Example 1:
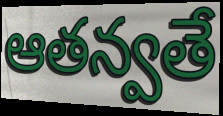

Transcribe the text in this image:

ఆతన్వతే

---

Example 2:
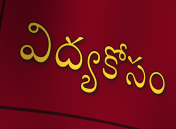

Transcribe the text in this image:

విద్యకోసం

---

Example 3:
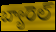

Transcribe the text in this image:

బ్యారెల్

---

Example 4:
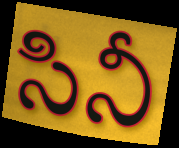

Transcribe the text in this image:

సినీ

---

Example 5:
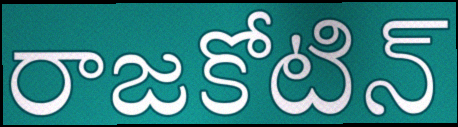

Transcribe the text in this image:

రాజకోటిన్